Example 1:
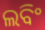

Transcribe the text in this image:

ଲବିଂ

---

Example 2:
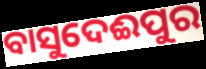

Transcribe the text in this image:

ବାସୁଦେଈପୁର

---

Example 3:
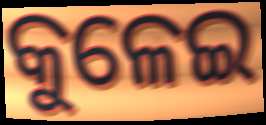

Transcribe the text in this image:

କୁଳେଇ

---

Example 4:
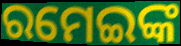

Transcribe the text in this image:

ରମେଇଙ୍କ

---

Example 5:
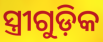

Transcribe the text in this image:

ସ୍ତ୍ରୀଗୁଡ଼ିକ